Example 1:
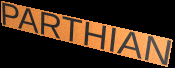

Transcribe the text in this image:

PARTHIAN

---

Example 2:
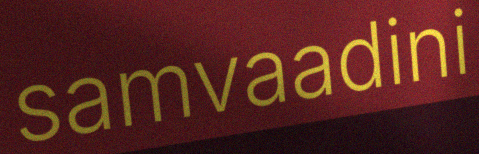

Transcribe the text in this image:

samvaadini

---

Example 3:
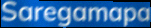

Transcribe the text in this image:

Saregamapa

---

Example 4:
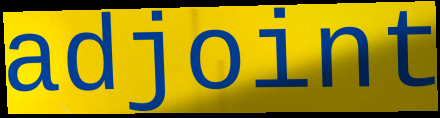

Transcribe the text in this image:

adjoint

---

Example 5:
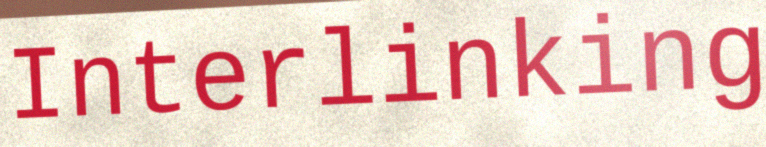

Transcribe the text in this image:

Interlinking